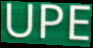
UPE